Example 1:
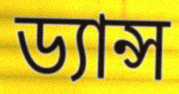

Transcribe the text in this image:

ড্যান্স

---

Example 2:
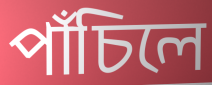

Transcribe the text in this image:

পাঁচিলে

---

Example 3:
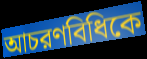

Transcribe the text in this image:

আচরণবিধিকে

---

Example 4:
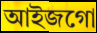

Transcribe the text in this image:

আইজগো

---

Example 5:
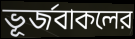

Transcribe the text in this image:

ভূর্জবাকলের